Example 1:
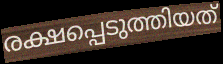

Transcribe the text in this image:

രക്ഷപ്പെടുത്തിയത്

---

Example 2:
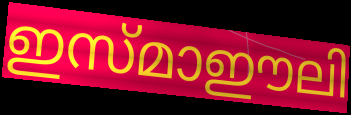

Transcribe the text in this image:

ഇസ്മാഈലി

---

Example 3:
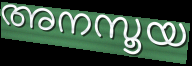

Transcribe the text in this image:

അനസൂയ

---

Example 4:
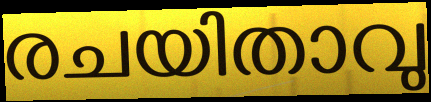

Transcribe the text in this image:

രചയിതാവു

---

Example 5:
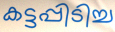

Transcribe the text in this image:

കട്ടപ്പിടിച്ച